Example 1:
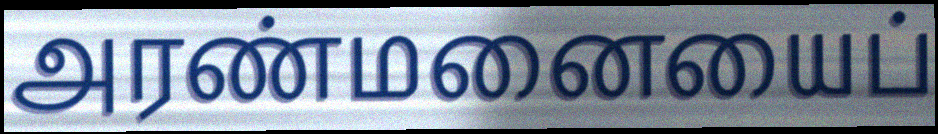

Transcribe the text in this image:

அரண்மனையைப்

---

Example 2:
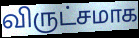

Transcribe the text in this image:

விருட்சமாக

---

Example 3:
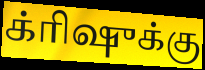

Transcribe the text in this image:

க்ரிஷுக்கு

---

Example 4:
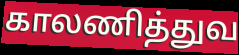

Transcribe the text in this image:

காலணித்துவ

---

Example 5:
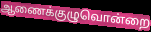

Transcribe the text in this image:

ஆணைக்குழுவொன்றை